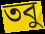
তবু